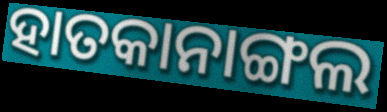
ହାତକାନାଙ୍ଗଲ